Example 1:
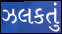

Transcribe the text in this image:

ઝલકતું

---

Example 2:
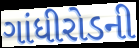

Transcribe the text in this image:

ગાંધીરોડની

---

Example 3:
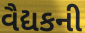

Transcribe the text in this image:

વૈદ્યકની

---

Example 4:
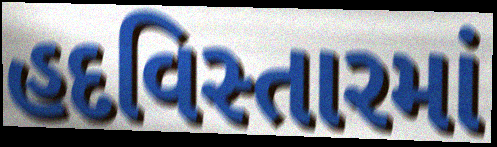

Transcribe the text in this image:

હદવિસ્તારમાં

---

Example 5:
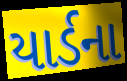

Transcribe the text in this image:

યાર્ડના